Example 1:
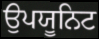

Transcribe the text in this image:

ਉਪਯੂਨਿਟ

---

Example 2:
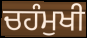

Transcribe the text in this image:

ਚਹੰਮੁਖੀ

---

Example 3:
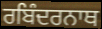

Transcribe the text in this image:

ਰਬਿੰਦਰਨਾਥ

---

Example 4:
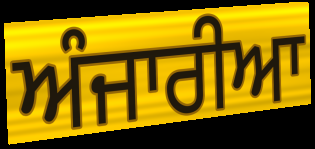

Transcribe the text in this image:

ਅੰਜਾਰੀਆ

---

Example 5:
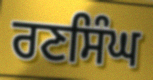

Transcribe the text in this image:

ਰਣਸਿੰਘ